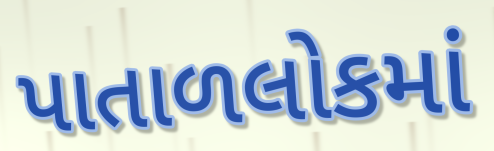
પાતાળલોકમાં